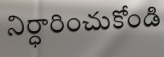
నిర్ధారించుకోండి